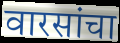
वारसांचा